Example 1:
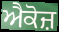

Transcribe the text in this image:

ਐਕੋਜ਼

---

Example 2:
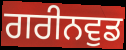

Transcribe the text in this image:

ਗਰੀਨਵੁਡ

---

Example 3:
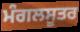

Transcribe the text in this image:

ਮੰਗਲਸੂਤਰ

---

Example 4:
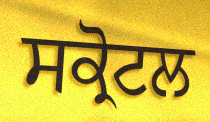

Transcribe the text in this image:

ਸਕ੍ਰੋਟਲ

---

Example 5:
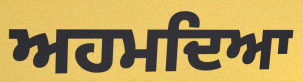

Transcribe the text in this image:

ਅਹਮਦਿਆ